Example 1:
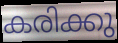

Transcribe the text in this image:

കരിക്കു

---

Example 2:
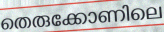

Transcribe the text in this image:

തെരുക്കോണിലെ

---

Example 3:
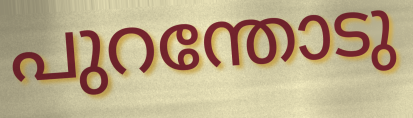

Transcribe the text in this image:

പുറന്തോടു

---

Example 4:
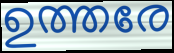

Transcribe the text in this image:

ഉത്തരേ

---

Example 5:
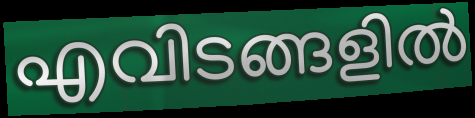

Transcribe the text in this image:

എവിടങ്ങളിൽ